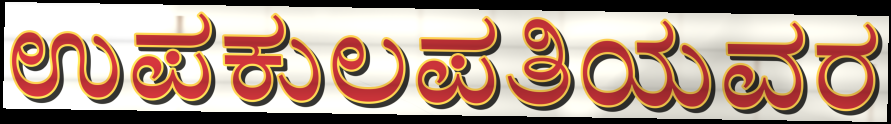
ಉಪಕುಲಪತಿಯವರ